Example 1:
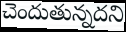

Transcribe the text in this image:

చెందుతున్నదని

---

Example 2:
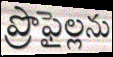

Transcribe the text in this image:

ప్రొఫైల్లను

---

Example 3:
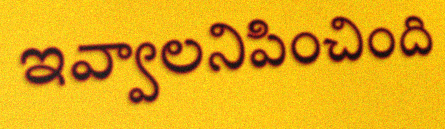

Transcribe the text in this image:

ఇవ్వాలనిపించింది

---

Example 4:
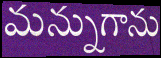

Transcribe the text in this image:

మన్నుగాను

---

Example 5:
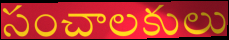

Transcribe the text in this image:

సంచాలకులు